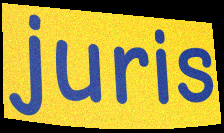
juris